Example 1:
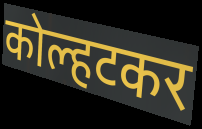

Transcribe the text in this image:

कोल्हटकर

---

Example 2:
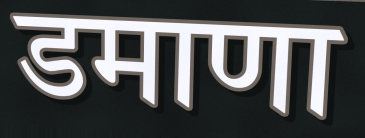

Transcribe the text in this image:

डमाणा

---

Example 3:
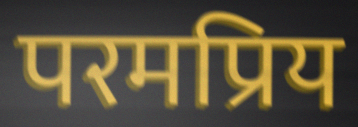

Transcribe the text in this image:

परमप्रिय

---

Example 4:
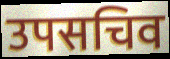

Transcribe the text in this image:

उपसचिव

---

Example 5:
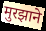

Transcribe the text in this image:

मुरझाने